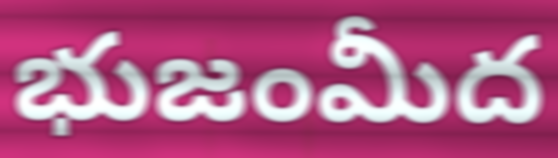
భుజంమీద